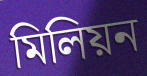
মিলিয়ন